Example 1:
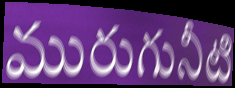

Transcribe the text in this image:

మురుగునీటి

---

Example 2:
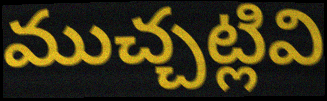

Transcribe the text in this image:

ముచ్చట్లివి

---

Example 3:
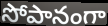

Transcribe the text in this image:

సోపానంగా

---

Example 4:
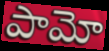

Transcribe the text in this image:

పామో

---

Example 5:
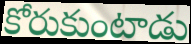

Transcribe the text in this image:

కోరుకుంటాడు